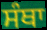
ਸੰਥਾ